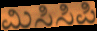
ಮಿಸಿಸಿಪಿ